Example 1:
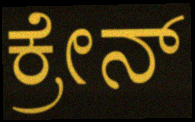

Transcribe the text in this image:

ಕ್ರೇನ್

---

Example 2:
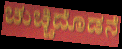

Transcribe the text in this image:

ಚುಚ್ಚಿದೊಡನೆ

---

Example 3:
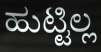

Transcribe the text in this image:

ಹುಟ್ಟಿಲ್ಲ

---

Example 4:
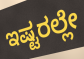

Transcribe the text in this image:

ಇಷ್ಟರಲ್ಲೇ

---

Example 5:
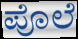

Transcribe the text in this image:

ಪೊಲೆ